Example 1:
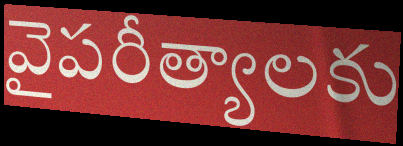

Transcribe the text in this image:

వైపరీత్యాలకు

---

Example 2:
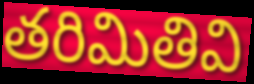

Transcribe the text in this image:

తరిమితివి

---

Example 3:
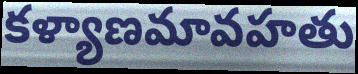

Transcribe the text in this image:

కళ్యాణమావహతు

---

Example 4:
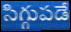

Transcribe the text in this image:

సిగ్గుపడే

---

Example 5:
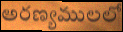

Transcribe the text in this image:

అరణ్యములలో